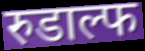
रुडाल्फ